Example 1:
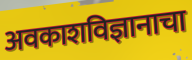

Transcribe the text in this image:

अवकाशविज्ञानाचा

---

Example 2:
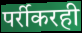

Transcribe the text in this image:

पर्रीकरही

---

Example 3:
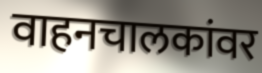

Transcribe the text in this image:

वाहनचालकांवर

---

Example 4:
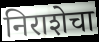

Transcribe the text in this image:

निराशेचा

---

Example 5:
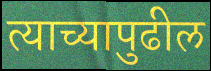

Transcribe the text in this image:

त्याच्यापुढील